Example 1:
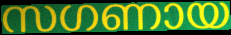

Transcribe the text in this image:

സഗണായ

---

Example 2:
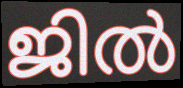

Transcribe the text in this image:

ജിൽ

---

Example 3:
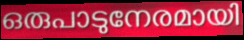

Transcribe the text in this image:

ഒരുപാടുനേരമായി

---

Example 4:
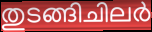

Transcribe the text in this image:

തുടങ്ങിചിലർ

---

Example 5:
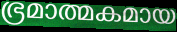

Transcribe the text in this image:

ഭ്രമാത്മകമായ